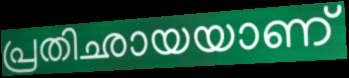
പ്രതിഛായയാണ്